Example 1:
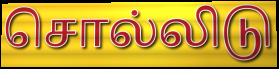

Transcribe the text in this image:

சொல்லிடு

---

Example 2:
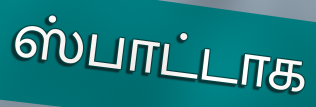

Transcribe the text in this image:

ஸ்பாட்டாக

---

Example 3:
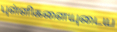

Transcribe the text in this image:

புள்ளிகளையுடைய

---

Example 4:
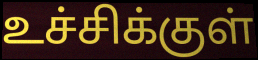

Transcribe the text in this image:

உச்சிக்குள்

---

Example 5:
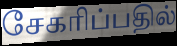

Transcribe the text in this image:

சேகரிப்பதில்